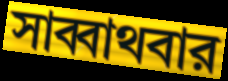
সাব্বাথবার